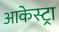
आकेस्ट्रा